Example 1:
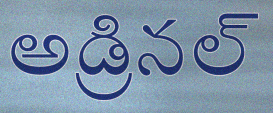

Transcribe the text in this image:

అడ్రినల్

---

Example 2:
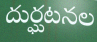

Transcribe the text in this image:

దుర్ఘటనల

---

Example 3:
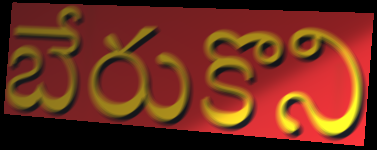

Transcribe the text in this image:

బేరుకొని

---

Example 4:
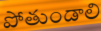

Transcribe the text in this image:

పోతుండాలి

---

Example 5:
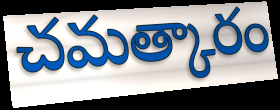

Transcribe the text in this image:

చమత్కారం